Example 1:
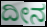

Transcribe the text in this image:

ದೀನ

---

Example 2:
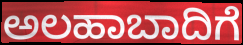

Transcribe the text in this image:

ಅಲಹಾಬಾದಿಗೆ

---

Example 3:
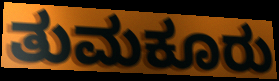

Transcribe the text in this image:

ತುಮಕೂರು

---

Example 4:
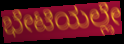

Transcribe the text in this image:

ಭೇಟಿಯಲ್ಲೇ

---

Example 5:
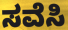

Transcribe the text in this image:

ಸವೆಸಿ